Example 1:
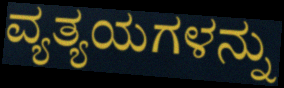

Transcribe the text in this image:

ವ್ಯತ್ಯಯಗಳನ್ನು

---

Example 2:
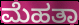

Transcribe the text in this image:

ಮೆಹತಾ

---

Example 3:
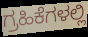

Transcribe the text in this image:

ಗ್ರಹಿಕೆಗಳಲ್ಲಿ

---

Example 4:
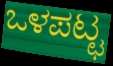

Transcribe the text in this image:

ಒಳಪಟ್ಟ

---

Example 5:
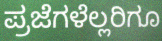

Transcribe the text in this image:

ಪ್ರಜೆಗಳೆಲ್ಲರಿಗೂ